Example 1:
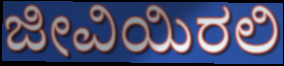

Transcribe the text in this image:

ಜೀವಿಯಿರಲಿ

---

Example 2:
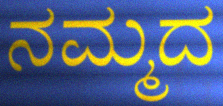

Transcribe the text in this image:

ನಮ್ಮದ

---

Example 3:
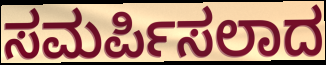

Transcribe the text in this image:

ಸಮರ್ಪಿಸಲಾದ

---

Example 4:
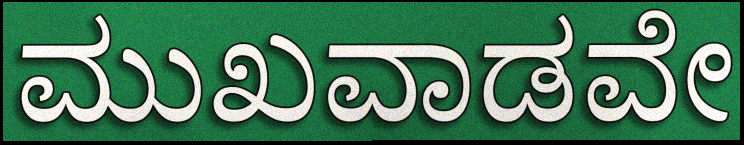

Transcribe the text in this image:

ಮುಖವಾಡವೇ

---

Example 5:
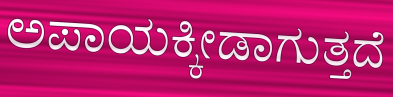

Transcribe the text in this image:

ಅಪಾಯಕ್ಕೀಡಾಗುತ್ತದೆ